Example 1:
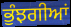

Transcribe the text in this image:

ਭੁੰਝਗੀਆਂ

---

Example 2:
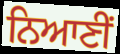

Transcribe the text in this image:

ਨਿਆਣੀਂ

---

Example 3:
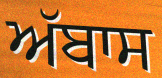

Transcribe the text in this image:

ਅੱਬਾਸ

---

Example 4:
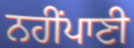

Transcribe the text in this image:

ਨਹੀਂਪਾਣੀ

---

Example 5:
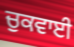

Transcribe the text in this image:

ਚੁਕਵਾਈ